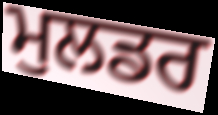
ਮੁਲਡਰ